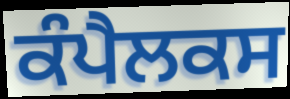
ਕੰਪੈਲਕਸ